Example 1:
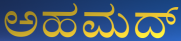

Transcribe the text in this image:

ಅಹಮದ್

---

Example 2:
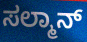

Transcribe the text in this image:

ಸಲ್ಮಾನ್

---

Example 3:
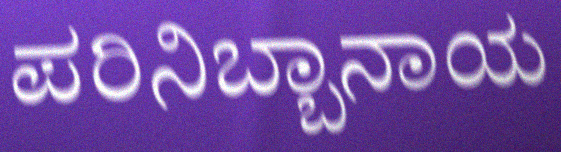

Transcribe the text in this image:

ಪರಿನಿಬ್ಬಾನಾಯ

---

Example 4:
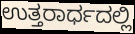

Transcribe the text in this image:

ಉತ್ತರಾರ್ಧದಲ್ಲಿ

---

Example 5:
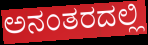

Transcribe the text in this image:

ಅನಂತರದಲ್ಲಿ